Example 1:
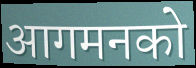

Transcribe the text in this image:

आगमनको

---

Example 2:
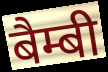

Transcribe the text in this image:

बैम्बी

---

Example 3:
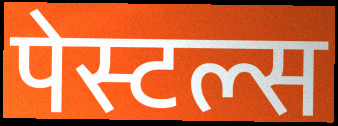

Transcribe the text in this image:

पेस्टल्स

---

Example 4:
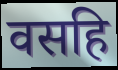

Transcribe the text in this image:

वसहि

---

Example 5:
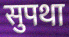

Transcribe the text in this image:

सुपथा